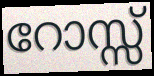
റോസ്സ്